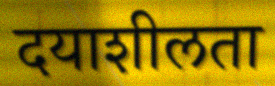
दयाशीलता